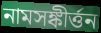
নামসঙ্কীর্ত্তন